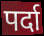
पर्दा